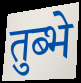
तुब्भे